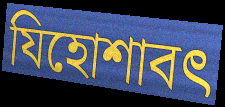
যিহোশাবৎ